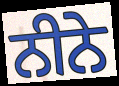
ਨੀਨੇ